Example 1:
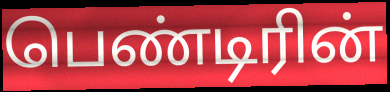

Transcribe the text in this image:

பெண்டிரின்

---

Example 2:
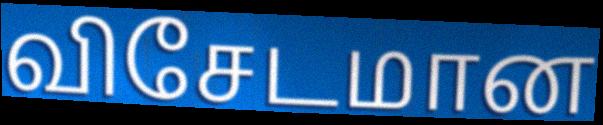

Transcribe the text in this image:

விசேடமான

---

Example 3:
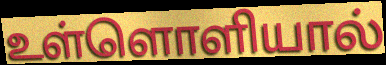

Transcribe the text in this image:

உள்ளொளியால்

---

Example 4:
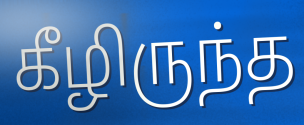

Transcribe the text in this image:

கீழிருந்த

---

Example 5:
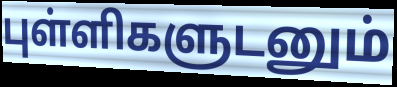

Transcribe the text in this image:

புள்ளிகளுடனும்